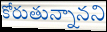
కోరుతున్నానని